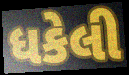
ધકેલી